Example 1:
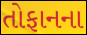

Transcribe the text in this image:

તોફાનના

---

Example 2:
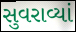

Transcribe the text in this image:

સુવરાવ્યાં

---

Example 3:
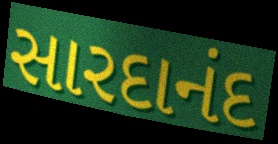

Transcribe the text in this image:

સારદાનંદ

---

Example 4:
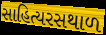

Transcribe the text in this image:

સાહિત્યરસથાળ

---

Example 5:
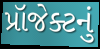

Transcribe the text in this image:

પ્રૉજેક્ટનું